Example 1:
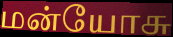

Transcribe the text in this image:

மன்யோசு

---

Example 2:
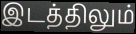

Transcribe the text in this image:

இடத்திலும்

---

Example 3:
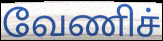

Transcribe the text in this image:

வேணிச்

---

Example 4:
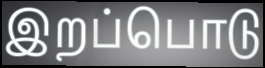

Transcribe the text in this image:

இறப்பொடு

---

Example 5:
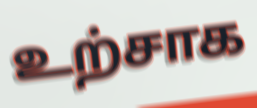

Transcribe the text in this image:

உற்சாக